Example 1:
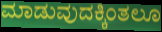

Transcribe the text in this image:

ಮಾಡುವುದಕ್ಕಿಂತಲೂ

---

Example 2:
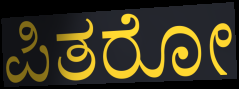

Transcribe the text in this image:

ಪಿತರೋ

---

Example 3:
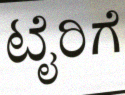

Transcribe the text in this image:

ಟೈರಿಗೆ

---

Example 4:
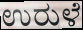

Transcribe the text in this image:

ಉರುಳೆ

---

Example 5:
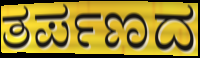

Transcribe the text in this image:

ತರ್ಪಣದ